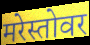
मरेस्तोवर